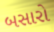
બસારો